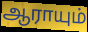
ஆராயும்